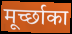
मूर्च्छाका